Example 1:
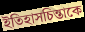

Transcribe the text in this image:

ইতিহাসচিন্তাকে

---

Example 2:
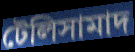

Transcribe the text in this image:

টেলিসামাদ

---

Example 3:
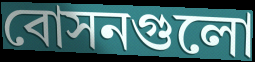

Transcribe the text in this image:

বোসনগুলো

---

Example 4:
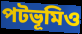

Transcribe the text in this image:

পটভূমিও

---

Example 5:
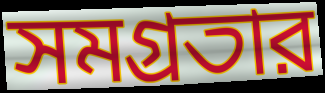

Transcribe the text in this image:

সমগ্রতার